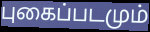
புகைப்படமும்